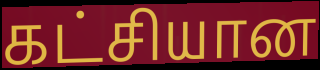
கட்சியான